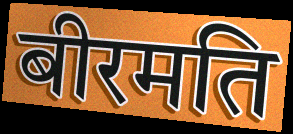
बीरमति